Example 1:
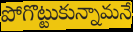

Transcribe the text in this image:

పోగొట్టుకున్నామనే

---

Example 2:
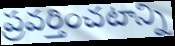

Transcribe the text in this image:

ప్రవర్తించటాన్ని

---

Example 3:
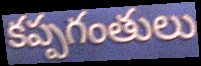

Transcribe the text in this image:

కప్పగంతులు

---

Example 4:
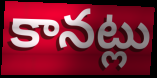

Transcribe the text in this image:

కానట్లు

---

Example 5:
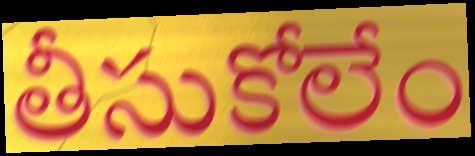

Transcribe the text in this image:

తీసుకోలేం